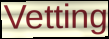
Vetting